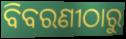
ବିବରଣୀଠାରୁ